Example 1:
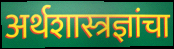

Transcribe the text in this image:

अर्थशास्त्रज्ञांचा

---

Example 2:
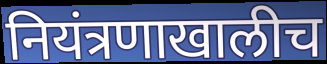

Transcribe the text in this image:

नियंत्रणाखालीच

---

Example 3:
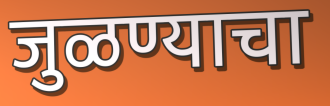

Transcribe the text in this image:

जुळण्याचा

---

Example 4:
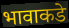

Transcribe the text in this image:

भावाकडे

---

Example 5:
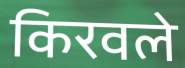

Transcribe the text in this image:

किरवले